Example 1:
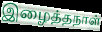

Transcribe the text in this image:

இழைத்தநாள்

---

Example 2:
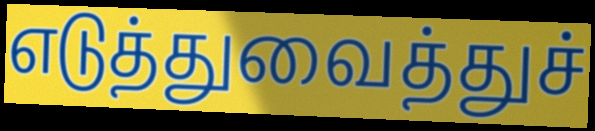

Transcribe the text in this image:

எடுத்துவைத்துச்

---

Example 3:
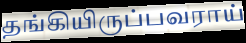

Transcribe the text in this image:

தங்கியிருப்பவராய்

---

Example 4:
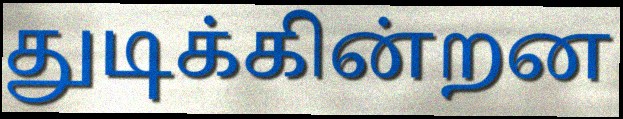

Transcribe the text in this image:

துடிக்கின்றன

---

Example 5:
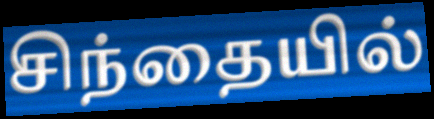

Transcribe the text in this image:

சிந்தையில்